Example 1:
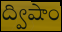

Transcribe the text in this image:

ద్విషాం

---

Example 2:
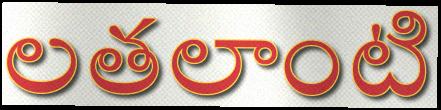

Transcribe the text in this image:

లతలాంటి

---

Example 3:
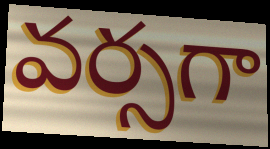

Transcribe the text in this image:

వర్సగా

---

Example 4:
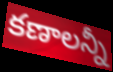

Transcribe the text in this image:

కణాలన్నీ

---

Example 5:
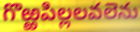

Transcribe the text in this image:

గొఱ్ఱపిల్లలవలెను